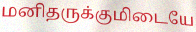
மனிதருக்குமிடையே